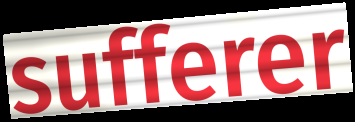
sufferer